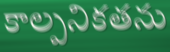
కాల్పనికతను